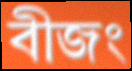
বীজং